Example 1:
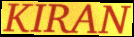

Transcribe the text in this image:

KIRAN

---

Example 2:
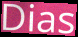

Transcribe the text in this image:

Dias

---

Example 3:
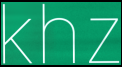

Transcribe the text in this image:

khz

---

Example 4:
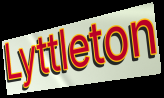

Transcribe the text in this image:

Lyttleton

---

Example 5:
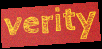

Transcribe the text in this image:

verity